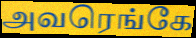
அவரெங்கே